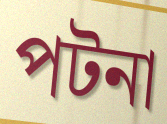
পটনা